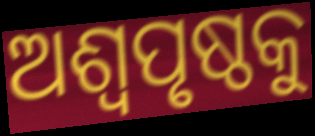
ଅଶ୍ୱପୃଷ୍ଠକୁ